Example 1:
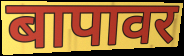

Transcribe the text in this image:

बापावर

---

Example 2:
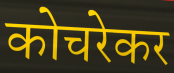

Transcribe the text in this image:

कोचरेकर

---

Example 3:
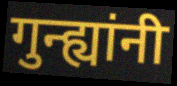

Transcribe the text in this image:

गुन्ह्यांनी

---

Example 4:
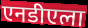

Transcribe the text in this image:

एनडीएला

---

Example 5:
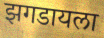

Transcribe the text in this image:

झगडायला